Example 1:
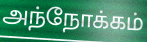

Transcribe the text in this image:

அந்நோக்கம்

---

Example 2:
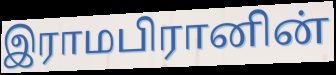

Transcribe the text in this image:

இராமபிரானின்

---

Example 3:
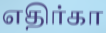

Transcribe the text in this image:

எதிர்கா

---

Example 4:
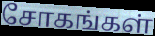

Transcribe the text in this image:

சோகங்கள்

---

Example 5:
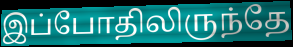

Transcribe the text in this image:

இப்போதிலிருந்தே